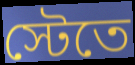
স্টেতে